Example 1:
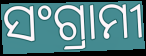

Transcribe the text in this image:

ସଂଗ୍ରାମୀ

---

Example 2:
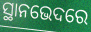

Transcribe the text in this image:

ସ୍ଥାନଭେଦରେ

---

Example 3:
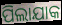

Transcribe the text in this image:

ପିଲାଯାକ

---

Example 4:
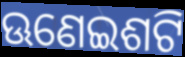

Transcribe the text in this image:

ଊଣେଇଶଟି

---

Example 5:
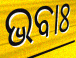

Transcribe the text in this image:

ଭବାଃ